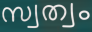
സ്വത്വം